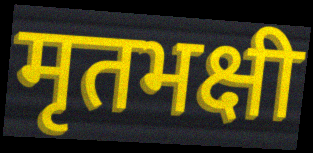
मृतभक्षी